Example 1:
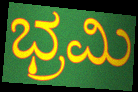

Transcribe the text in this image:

ಭ್ರಮಿ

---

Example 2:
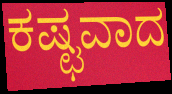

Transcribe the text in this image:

ಕಷ್ಟವಾದ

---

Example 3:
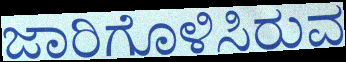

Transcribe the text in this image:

ಜಾರಿಗೊಳಿಸಿರುವ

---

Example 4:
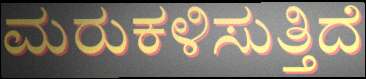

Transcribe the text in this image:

ಮರುಕಳಿಸುತ್ತಿದೆ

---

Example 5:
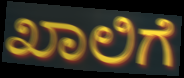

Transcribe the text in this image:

ಖಾಲಿಗೆ